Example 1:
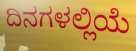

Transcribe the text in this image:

ದಿನಗಳಲ್ಲಿಯೆ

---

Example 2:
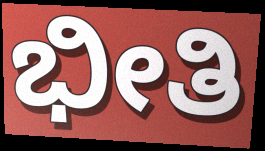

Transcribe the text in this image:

ಭೀತಿ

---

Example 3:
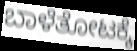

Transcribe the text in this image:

ಬಾಳೆತೋಟಕ್ಕೆ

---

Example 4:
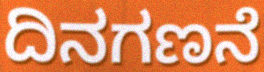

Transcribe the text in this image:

ದಿನಗಣನೆ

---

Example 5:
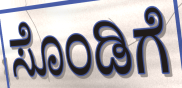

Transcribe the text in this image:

ಸೊಂಡಿಗೆ